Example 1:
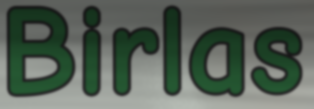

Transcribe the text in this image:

Birlas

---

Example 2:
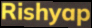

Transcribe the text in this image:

Rishyap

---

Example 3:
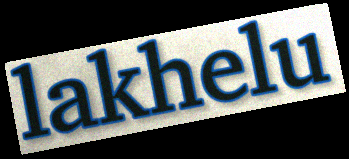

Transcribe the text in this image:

lakhelu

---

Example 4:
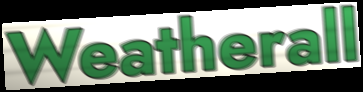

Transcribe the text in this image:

Weatherall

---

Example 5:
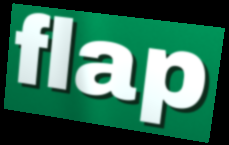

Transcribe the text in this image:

flap